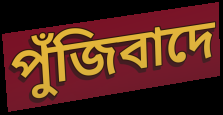
পুঁজিবাদে